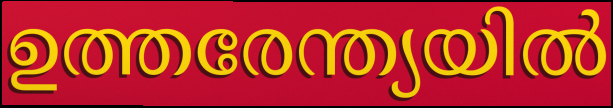
ഉത്തരേന്ത്യയിൽ